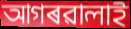
আগৰৱালাই